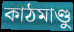
কাঠমাণ্ডু